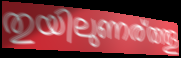
തുയിലുണര്ത്തൂ